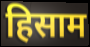
हिसाम